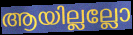
ആയില്ലല്ലോ